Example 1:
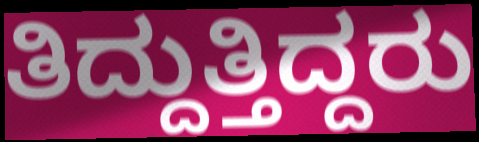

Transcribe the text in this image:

ತಿದ್ದುತ್ತಿದ್ದರು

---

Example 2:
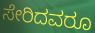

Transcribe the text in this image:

ಸೇರಿದವರೂ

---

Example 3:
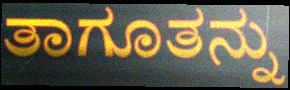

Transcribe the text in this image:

ತಾಗೂತನ್ನು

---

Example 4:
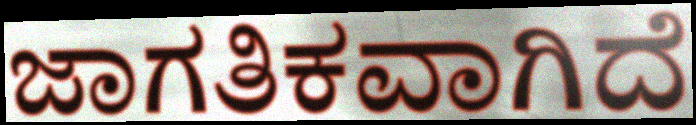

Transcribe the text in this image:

ಜಾಗತಿಕವಾಗಿದೆ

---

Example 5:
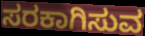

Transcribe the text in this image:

ಸರಕಾಗಿಸುವ